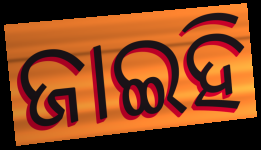
ଜାଇହି